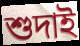
শুদাই